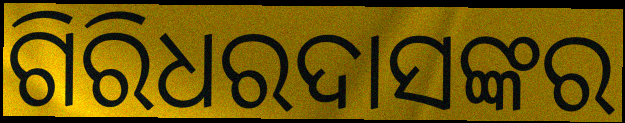
ଗିରିଧରଦାସଙ୍କର